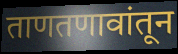
ताणतणावांतून